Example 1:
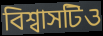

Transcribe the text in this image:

বিশ্বাসটিও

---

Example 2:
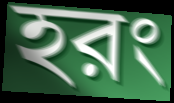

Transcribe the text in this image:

হরং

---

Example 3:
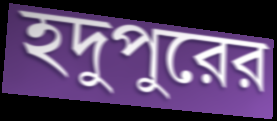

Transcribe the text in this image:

হদুপুরের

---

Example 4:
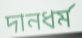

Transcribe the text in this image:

দানধর্ম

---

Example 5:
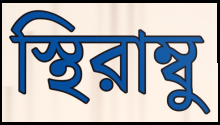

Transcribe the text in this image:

স্থিরাম্বু